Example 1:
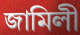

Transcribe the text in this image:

জামিলী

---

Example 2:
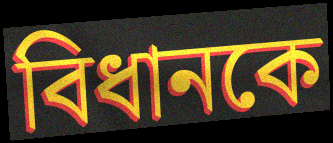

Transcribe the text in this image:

বিধানকে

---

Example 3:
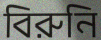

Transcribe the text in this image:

বিরুনি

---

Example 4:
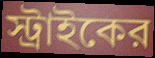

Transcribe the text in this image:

স্ট্রাইকের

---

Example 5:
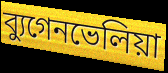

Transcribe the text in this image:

ব্যুগেনভেলিয়া